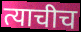
त्याचीच